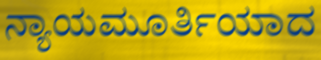
ನ್ಯಾಯಮೂರ್ತಿಯಾದ